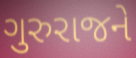
ગુરુરાજને